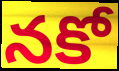
నకో